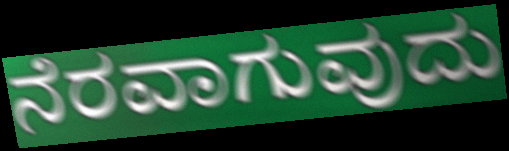
ನೆರವಾಗುವುದು